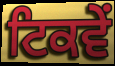
ਟਿਕਵੇਂ